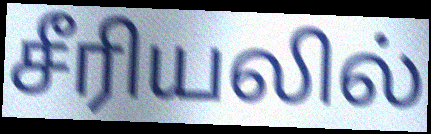
சீரியலில்